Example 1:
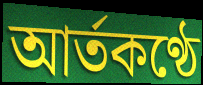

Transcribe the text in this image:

আর্তকণ্ঠে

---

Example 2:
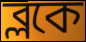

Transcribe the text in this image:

ব্লকে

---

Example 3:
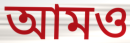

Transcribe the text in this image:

আমও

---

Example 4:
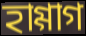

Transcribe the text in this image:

হাগ্গাগ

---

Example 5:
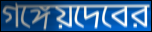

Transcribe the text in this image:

গঙ্গেয়দেবের